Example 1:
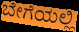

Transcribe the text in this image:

ಬೇಗೆಯಲ್ಲಿ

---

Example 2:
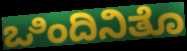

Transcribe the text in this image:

ಒಿಂದಿನಿತೊ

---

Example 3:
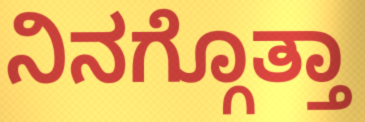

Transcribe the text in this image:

ನಿನಗ್ಗೊತ್ತಾ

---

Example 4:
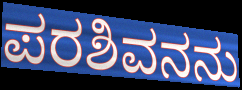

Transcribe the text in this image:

ಪರಶಿವನನು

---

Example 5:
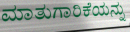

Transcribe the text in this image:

ಮಾತುಗಾರಿಕೆಯನ್ನು